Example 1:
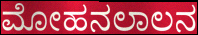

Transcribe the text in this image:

ಮೋಹನಲಾಲನ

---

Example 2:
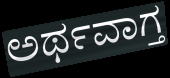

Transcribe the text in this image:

ಅರ್ಥವಾಗ್ತ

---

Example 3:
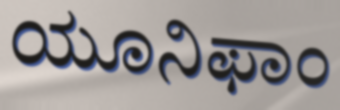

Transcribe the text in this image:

ಯೂನಿಫಾಂ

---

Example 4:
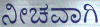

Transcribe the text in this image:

ನೀಚವಾಗಿ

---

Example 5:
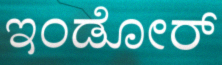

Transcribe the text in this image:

ಇಂಡೋರ್